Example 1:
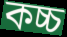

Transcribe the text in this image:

কচ্চ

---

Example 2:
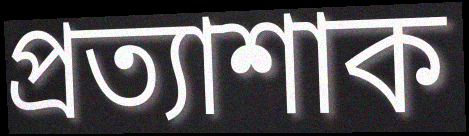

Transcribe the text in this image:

প্ৰত্যাশাক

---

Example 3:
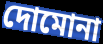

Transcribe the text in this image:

দোমোনা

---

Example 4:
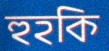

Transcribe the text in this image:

হুহকি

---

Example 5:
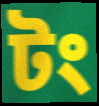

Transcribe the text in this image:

টং